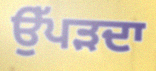
ਉੱਪੜਦਾ